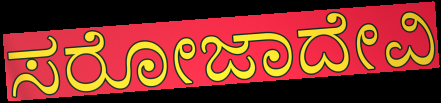
ಸರೋಜಾದೇವಿ